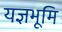
यज्ञभूमि